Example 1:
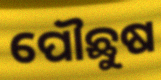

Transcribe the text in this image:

ପୌଛୁଷ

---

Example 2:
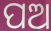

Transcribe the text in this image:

ପଅ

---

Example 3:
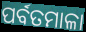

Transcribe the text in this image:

ପର୍ବତମାଳା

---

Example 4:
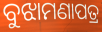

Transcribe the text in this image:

ବୁଝାମଣାପତ୍ର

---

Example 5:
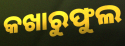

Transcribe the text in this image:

କଖାରୁଫୁଲ